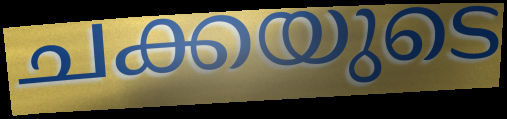
ചക്കയുടെ